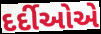
દર્દીઓએ